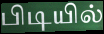
பிடியில்